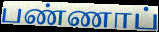
பண்ணாப்